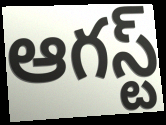
ఆగస్ట్